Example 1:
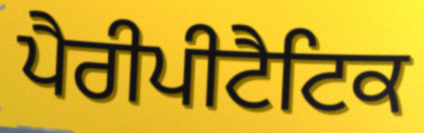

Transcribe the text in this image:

ਪੈਰੀਪੀਟੈਟਿਕ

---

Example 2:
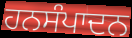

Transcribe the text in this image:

ਹਨਸੰਪਾਦਨ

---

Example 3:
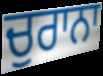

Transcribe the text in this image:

ਚੁਰਾਨਾ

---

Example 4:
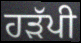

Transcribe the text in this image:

ਹੜੱਪੀ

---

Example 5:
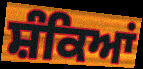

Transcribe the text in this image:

ਸ਼ੰਕਿਆਂ